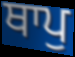
ਥਾਪੁ